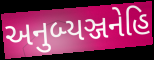
અનુબ્યઞ્જનેહિ